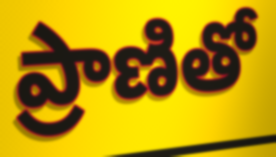
ప్రాణితో